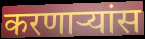
करणाऱ्यांस